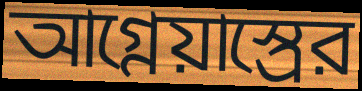
আগ্নেয়াস্ত্রের